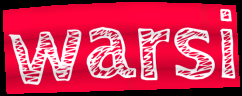
warsi